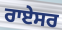
ਰਾਏਸਰ